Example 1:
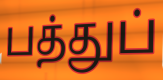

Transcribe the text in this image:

பத்துப்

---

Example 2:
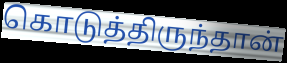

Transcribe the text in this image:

கொடுத்திருந்தான்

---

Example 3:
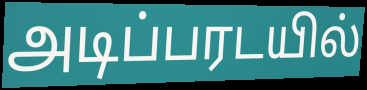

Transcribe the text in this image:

அடிப்பரடயில்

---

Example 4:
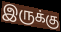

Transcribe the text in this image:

இருக்கு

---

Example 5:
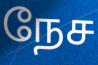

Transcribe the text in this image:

நேச